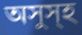
অসুস্হ